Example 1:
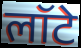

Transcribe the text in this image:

लॉटे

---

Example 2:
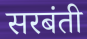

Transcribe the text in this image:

सरबंती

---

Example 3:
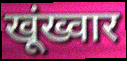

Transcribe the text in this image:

खूंख्वार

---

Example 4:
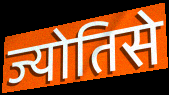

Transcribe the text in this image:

ज्योतिसे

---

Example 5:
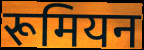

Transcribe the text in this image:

रूमियन